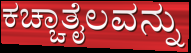
ಕಚ್ಚಾತೈಲವನ್ನು